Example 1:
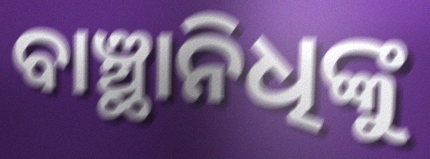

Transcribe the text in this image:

ବାଞ୍ଛାନିଧିଙ୍କୁ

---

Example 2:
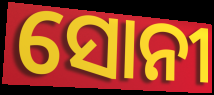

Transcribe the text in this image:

ସୋନୀ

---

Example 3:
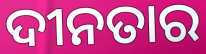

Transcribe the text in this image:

ଦୀନତାର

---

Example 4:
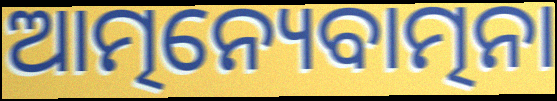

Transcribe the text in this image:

ଆତ୍ମନ୍ୟେବାତ୍ମନା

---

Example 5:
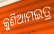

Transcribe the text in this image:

କୁଣିଆମଇତ୍ର